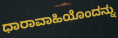
ಧಾರಾವಾಹಿಯೊಂದನ್ನು